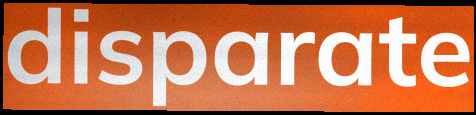
disparate